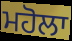
ਮਹੋਲਾ